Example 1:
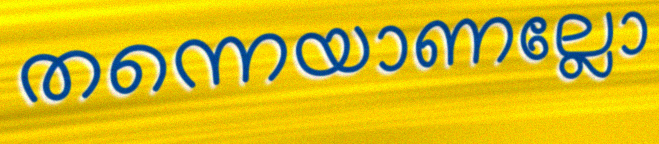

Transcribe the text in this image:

തന്നെയാണല്ലോ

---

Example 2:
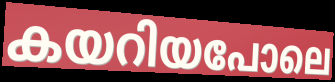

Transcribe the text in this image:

കയറിയപോലെ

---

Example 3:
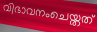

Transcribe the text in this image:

വിഭാവനംചെയ്തത്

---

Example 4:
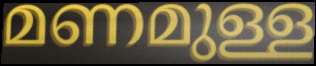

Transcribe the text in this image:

മണമുള്ള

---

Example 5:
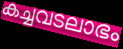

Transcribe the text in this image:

കച്ചവടലാഭം